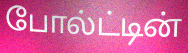
போல்ட்டின்